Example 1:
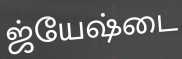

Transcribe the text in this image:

ஜ்யேஷ்டை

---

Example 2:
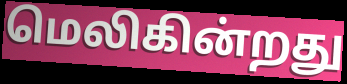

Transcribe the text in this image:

மெலிகின்றது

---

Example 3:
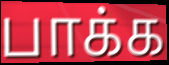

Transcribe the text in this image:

பாக்க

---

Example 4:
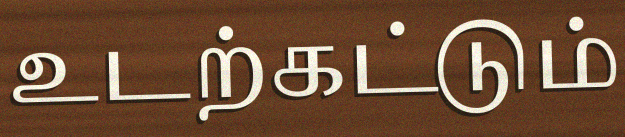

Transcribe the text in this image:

உடற்கட்டும்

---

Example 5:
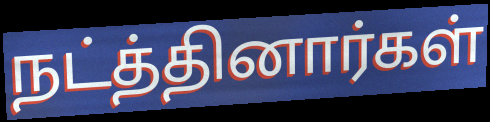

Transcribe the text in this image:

நட்த்தினார்கள்